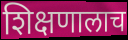
शिक्षणालाच